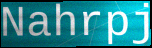
Nahrpj